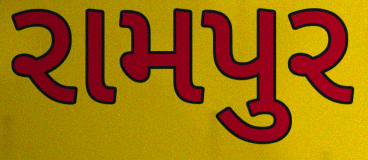
રામપુર